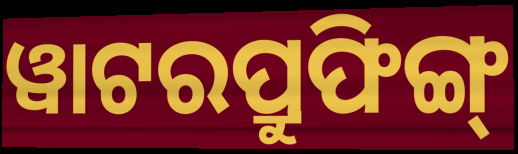
ୱାଟରପ୍ରୁଫିଙ୍ଗ୍